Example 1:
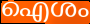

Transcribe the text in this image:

ഐശം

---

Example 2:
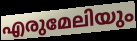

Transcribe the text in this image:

എരുമേലിയും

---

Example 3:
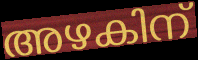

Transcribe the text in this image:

അഴകിന്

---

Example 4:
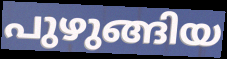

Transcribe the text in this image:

പുഴുങ്ങിയ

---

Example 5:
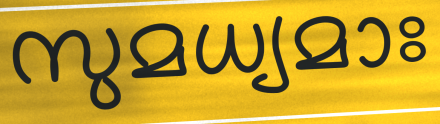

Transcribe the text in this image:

സുമധ്യമാഃ